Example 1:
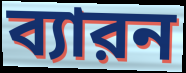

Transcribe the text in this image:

ব্যারন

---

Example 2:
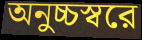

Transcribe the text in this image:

অনুচ্চস্বরে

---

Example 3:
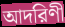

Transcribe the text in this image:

আদরিণী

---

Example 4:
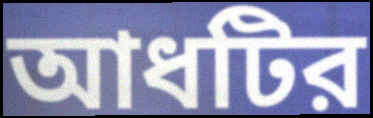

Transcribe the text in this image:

আধটির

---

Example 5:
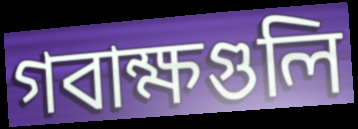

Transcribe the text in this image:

গবাক্ষগুলি